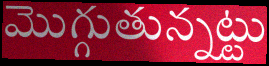
మొగ్గుతున్నట్టు